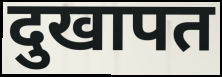
दुखापत